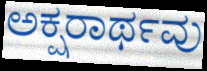
ಅಕ್ಷರಾರ್ಥವು